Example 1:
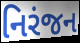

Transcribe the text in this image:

નિરંજન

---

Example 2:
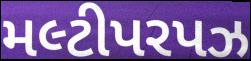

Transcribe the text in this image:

મલ્ટીપરપઝ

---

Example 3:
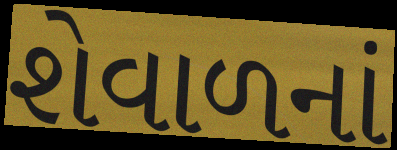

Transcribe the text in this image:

શેવાળનાં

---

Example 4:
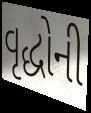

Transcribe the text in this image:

વૃદ્ધોની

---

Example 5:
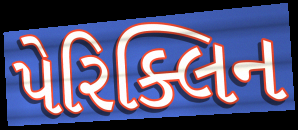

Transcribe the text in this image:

પેરિક્લિન